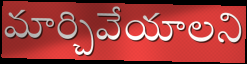
మార్చివేయాలని